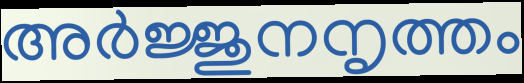
അർജ്ജുനനൃത്തം